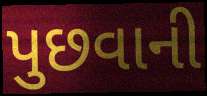
પુછવાની